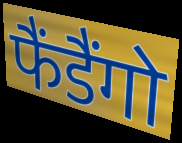
फैंडैंगो